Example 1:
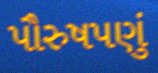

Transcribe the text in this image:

પૌરુષપણું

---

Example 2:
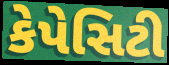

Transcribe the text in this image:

કેપેસિટી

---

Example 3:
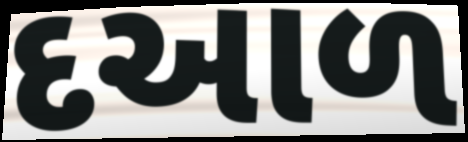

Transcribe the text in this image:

દઆળ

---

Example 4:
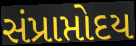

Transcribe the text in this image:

સંપ્રાપ્તોદય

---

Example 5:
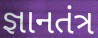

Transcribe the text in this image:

જ્ઞાનતંત્ર